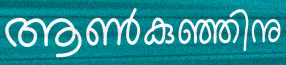
ആൺകുഞ്ഞിനു